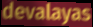
devalayas